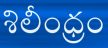
శిలీంధ్రం